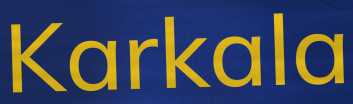
Karkala